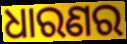
ଧାରଣର